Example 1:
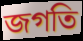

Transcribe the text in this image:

জগতি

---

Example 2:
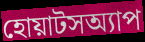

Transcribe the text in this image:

হোয়াটসঅ্যাপ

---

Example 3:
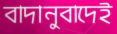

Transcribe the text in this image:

বাদানুবাদেই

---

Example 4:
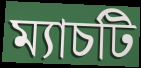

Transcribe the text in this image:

ম্যাচটি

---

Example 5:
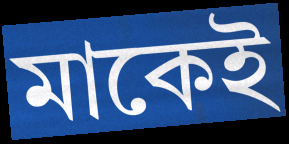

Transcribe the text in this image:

মাকেই